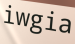
iwgia